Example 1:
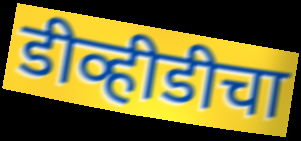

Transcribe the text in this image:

डीव्हीडीचा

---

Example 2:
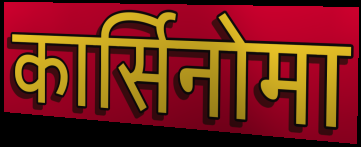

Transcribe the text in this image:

कार्सिनोमा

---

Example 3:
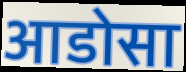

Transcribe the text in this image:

आडोसा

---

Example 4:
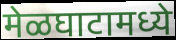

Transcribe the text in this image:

मेळघाटामध्ये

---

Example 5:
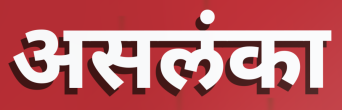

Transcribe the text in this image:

असलंका